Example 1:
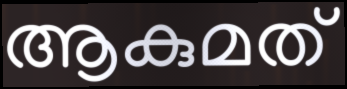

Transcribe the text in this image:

ആകുമത്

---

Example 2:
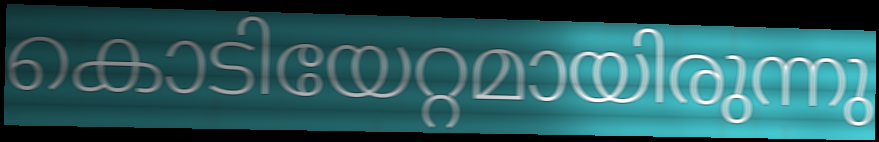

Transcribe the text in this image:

കൊടിയേറ്റമായിരുന്നു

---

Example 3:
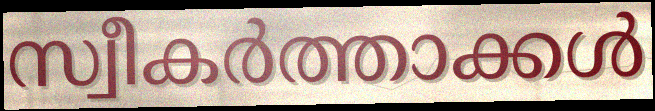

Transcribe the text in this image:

സ്വീകർത്താക്കൾ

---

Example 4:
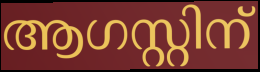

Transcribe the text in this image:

ആഗസ്റ്റിന്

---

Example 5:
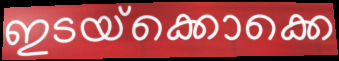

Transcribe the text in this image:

ഇടയ്‌ക്കൊക്കെ